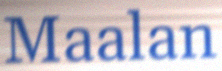
Maalan